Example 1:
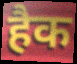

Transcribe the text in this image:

हैक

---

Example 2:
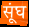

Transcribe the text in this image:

सूंघ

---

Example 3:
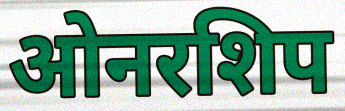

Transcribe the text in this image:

ओनरशिप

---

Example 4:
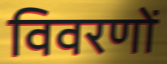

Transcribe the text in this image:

विवरणों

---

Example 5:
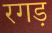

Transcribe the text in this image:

रगड़